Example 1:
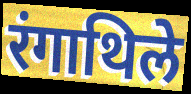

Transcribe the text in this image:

रंगाथिले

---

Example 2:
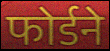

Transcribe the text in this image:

फोर्डने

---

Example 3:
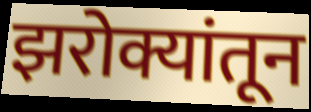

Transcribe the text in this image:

झरोक्यांतून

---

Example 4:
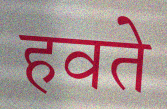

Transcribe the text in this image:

हवते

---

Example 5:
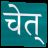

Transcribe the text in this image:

चेत्